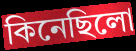
কিনেছিলো